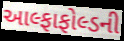
આલ્ફાફોલ્ડની